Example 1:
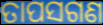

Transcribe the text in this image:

ତାପସଗଣ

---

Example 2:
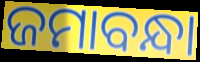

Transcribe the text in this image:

ଜମାବନ୍ଧା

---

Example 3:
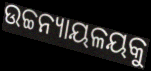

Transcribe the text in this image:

ଉଚ୍ଚନ୍ୟାୟଳୟକୁ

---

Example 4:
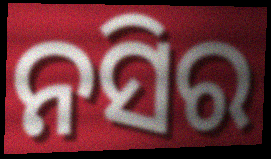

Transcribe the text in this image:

ନସିର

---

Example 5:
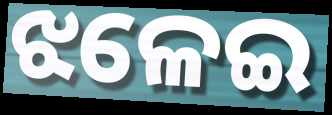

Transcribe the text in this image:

ଝଳେଇ